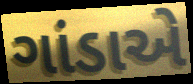
ગાંડાએ